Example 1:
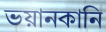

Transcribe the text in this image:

ভয়ানকানি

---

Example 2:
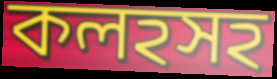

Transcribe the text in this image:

কলহসহ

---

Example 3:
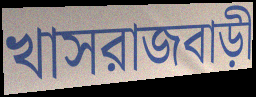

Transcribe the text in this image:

খাসরাজবাড়ী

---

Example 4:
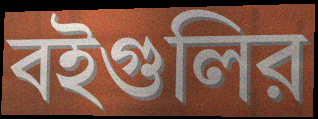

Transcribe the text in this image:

বইগুলির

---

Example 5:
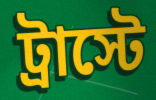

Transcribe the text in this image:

ট্রাস্টে